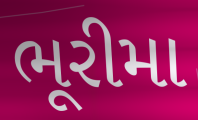
ભૂરીમા